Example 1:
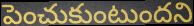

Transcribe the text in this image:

పెంచుకుంటుందని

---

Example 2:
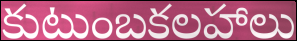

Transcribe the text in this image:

కుటుంబకలహాలు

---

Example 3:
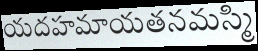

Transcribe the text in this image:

యదహమాయతనమస్మి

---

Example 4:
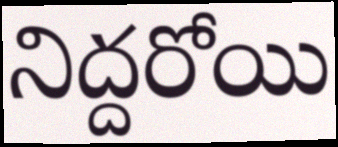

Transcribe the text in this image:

నిద్దరోయి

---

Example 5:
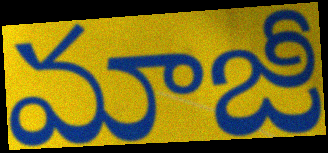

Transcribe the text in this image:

మాజీ